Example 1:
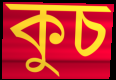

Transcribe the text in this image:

কুচ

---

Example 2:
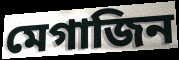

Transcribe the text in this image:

মেগাজিন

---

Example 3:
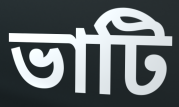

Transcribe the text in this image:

ভাটি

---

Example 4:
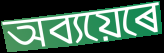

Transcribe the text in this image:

অব্যয়েৰে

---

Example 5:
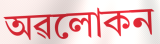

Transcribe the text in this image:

অৱলোকন